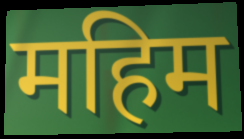
महिम